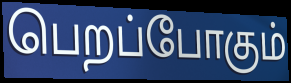
பெறப்போகும்